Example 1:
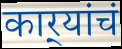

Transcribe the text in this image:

कार्यांचं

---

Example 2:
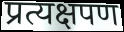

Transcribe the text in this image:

प्रत्यक्षपण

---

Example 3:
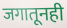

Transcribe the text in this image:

जगातूनही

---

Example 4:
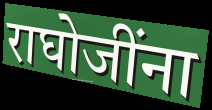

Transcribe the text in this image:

राघोजींना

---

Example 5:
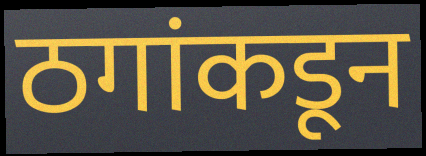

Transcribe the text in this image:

ठगांकडून